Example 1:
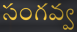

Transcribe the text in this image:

సంగవ్వ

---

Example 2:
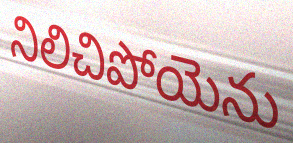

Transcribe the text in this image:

నిలిచిపోయెను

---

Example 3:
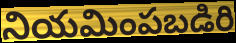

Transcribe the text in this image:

నియమింపబడిరి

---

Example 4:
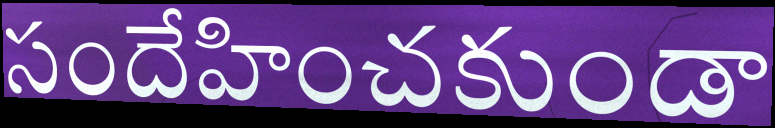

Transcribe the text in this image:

సందేహించకుండా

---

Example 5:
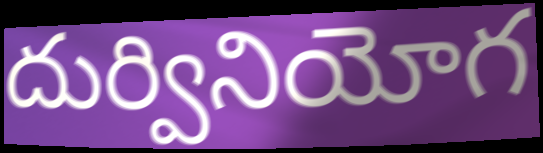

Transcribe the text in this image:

దుర్వినియోగ